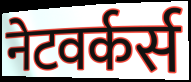
नेटवर्कर्स